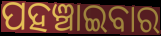
ପହଞ୍ଚାଇବାର